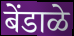
बेंडाळे